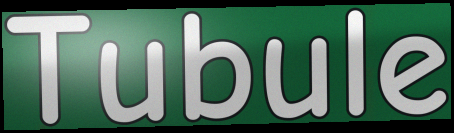
Tubule